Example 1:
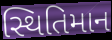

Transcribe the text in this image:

સ્થિતિમાન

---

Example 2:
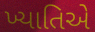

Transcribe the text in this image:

ખ્યાતિએ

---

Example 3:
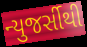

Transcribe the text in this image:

ન્યુજર્સીથી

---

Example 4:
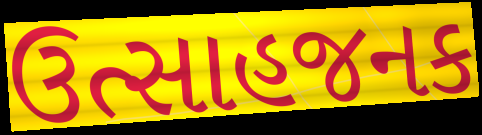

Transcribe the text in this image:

ઉત્સાહજનક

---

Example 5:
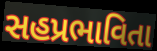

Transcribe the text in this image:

સહપ્રભાવિતા